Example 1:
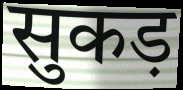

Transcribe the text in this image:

सुकड़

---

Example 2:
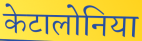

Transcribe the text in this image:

केटालोनिया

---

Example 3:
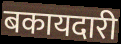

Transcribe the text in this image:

बकायदारी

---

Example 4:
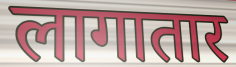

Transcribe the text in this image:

लागातार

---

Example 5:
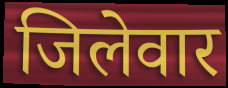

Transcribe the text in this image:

जिलेवार